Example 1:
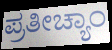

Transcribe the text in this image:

ಪ್ರತೀಚ್ಯಾಂ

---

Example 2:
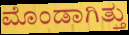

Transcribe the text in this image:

ಮೊಂಡಾಗಿತ್ತು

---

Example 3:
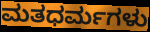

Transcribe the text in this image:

ಮತಧರ್ಮಗಳು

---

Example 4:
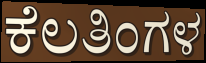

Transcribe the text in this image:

ಕೆಲತಿಂಗಳ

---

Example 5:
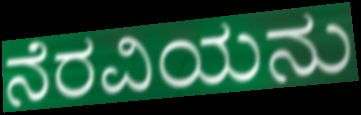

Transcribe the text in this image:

ನೆರವಿಯನು